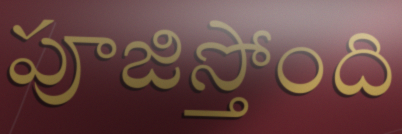
పూజిస్తోంది